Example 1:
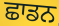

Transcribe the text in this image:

ਛਾਡਨ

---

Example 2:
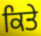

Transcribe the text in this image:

ਕਿਤੇ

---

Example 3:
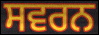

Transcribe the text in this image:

ਸਵਰਨ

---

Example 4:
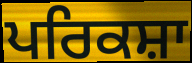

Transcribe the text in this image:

ਪਰਿਕਸ਼ਾ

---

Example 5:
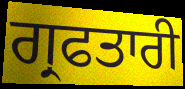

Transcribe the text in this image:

ਗ੍ਰਫਤਾਰੀ